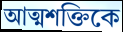
আত্মশক্তিকে